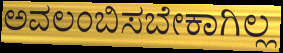
ಅವಲಂಬಿಸಬೇಕಾಗಿಲ್ಲ